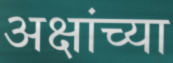
अक्षांच्या